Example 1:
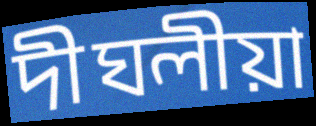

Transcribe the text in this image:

দীঘলীয়া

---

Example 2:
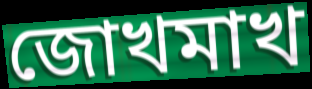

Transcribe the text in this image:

জোখমাখ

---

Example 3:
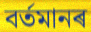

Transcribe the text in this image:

বৰ্তমানৰ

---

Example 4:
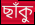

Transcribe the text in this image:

ছাঁকু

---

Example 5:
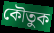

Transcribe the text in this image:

কৌতুক